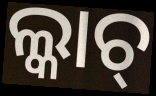
ଲ୍କାଚ୍